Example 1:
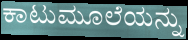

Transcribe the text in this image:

ಕಾಟುಮೂಲೆಯನ್ನು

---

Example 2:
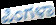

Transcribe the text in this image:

ಪಿಂಗಳಾ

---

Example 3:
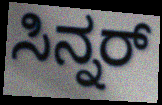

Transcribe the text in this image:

ಸಿನ್ನರ್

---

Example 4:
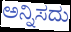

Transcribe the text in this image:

ಅನ್ನಿಸದು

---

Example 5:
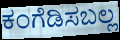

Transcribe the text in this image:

ಕಂಗೆಡಿಸಬಲ್ಲ